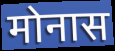
मोनास